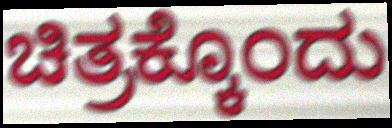
ಚಿತ್ರಕ್ಕೊಂದು